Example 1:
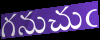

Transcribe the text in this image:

గనుచుఁ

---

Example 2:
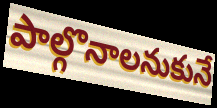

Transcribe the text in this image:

పాల్గొనాలనుకునే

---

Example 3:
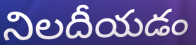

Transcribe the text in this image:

నిలదీయడం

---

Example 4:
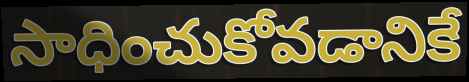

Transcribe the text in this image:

సాధించుకోవడానికే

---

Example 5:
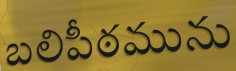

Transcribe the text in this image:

బలిపీఠమును